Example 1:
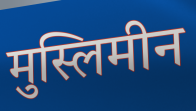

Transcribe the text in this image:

मुस्लिमीन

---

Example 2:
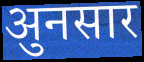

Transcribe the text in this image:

अुनसार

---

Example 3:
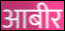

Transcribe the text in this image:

आबीर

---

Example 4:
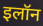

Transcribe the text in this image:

इलॉन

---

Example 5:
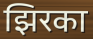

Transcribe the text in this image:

झिरका